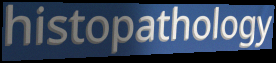
histopathology